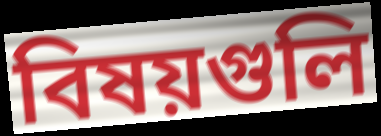
বিষয়গুলি